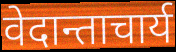
वेदान्ताचार्य